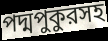
পদ্মপুকুরসহ